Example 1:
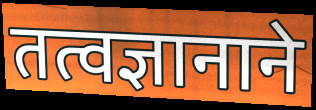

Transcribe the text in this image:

तत्वज्ञानाने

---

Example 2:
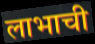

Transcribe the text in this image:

लाभाची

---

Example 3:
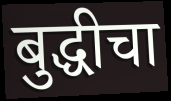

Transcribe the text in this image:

बुद्धीचा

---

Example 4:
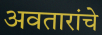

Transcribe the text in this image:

अवतारांचे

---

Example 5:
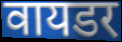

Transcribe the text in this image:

वायडर